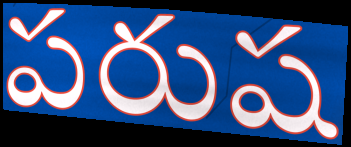
పరుష